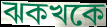
ঝকখকে